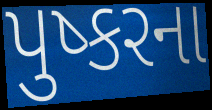
પુષ્કરના